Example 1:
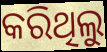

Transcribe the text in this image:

କରିଥିଲୁ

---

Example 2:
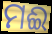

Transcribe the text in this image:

ମଈ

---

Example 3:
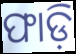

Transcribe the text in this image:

ଫାଡ଼ି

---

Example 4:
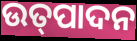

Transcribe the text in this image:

ଉତ୍‌ପାଦନ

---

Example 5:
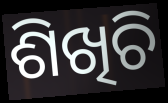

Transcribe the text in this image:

ଶିଖିଚି